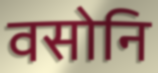
वसोनि